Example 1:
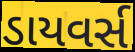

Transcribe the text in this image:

ડાયવર્સ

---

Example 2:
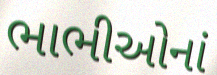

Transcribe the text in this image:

ભાભીઓનાં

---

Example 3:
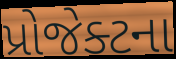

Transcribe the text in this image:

પ્રોજેક્ટના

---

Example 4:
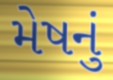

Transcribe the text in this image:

મેષનું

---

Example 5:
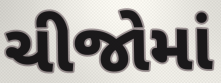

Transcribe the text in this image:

ચીજોમાં